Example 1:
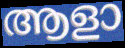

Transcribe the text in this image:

ആളാ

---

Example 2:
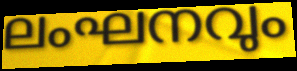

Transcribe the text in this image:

ലംഘനവും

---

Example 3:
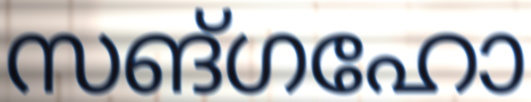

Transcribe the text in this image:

സങ്ഗഹോ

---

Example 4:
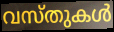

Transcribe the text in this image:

വസ്തുകൾ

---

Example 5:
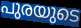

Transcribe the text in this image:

പുരയുടെ